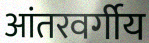
आंतरवर्गीय